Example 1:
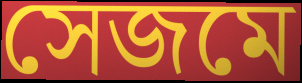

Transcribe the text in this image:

সেজমে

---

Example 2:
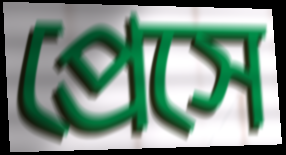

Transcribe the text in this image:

প্রেসে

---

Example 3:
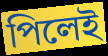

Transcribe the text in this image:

পিলেই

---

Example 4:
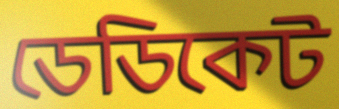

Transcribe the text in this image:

ডেডিকেট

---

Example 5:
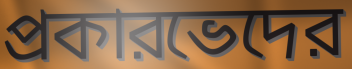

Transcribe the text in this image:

প্রকারভেদের